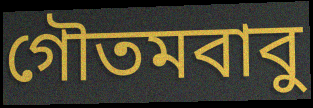
গৌতমবাবু